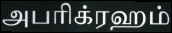
அபரிக்ரஹம்